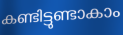
കണ്ടിട്ടുണ്ടാകാം